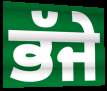
ਭੱਜੇ